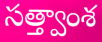
సత్త్వాంశ